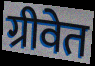
ग्रीवेत